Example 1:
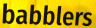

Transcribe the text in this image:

babblers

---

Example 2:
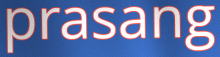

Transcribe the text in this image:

prasang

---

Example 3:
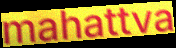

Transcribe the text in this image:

mahattva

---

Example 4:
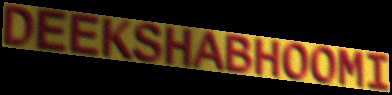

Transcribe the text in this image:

DEEKSHABHOOMI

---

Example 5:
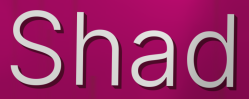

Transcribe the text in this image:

Shad